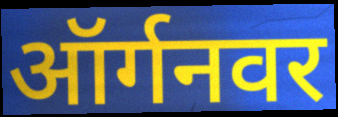
ऑर्गनवर